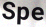
Spe